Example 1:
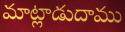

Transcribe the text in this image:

మాట్లాడుదాము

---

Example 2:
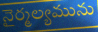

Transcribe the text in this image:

నైర్మల్యమును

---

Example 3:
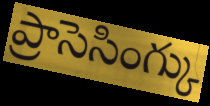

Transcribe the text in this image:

ప్రాసెసింగ్కు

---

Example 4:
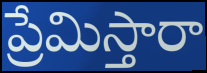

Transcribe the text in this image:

ప్రేమిస్తారా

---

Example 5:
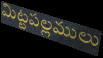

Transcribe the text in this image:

మిట్టపల్లములు